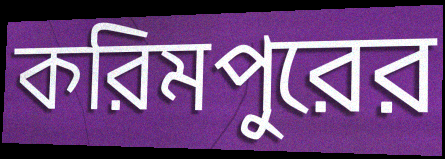
করিমপুরের